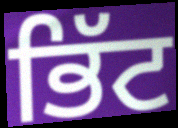
ਭਿੱਟ